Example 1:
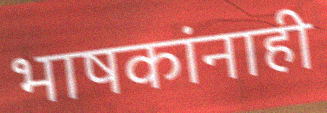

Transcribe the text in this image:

भाषकांनाही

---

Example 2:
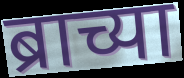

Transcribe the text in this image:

ब्राच्या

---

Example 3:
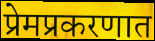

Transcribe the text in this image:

प्रेमप्रकरणात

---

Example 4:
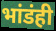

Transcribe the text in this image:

भांडंही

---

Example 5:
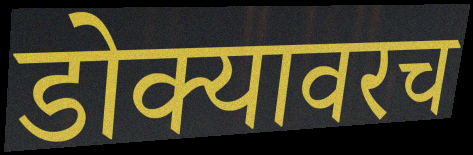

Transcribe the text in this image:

डोक्यावरच